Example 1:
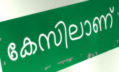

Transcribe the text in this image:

കേസിലാണ്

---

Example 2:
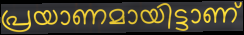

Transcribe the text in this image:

പ്രയാണമായിട്ടാണ്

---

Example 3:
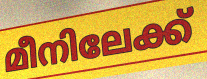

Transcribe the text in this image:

മീനിലേക്ക്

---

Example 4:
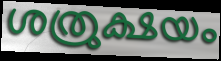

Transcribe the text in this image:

ശത്രുക്ഷയം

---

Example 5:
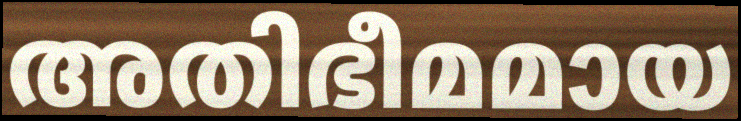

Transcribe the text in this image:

അതിഭീമമായ